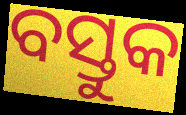
ବସ୍ତୁକ